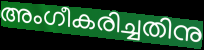
അംഗീകരിച്ചതിനു